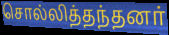
சொல்லித்தந்தனர்